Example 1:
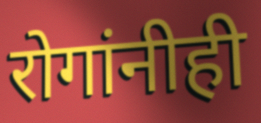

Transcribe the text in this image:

रोगांनीही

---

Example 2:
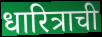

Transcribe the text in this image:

धारित्राची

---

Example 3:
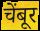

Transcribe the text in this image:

चेंबूर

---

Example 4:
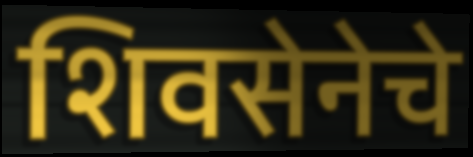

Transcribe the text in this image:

शिवसेनेचे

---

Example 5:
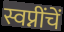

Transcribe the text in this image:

स्वप्नींचें